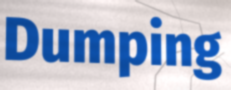
Dumping